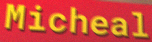
Micheal